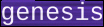
genesis